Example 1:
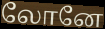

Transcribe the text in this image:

லோனே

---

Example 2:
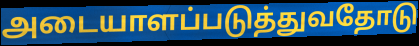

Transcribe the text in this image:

அடையாளப்படுத்துவதோடு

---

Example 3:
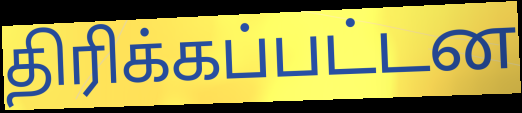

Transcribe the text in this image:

திரிக்கப்பட்டன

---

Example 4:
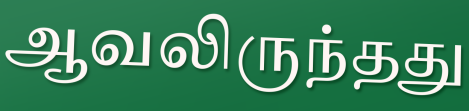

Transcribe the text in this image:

ஆவலிருந்தது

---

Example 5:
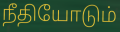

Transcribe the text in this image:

நீதியோடும்